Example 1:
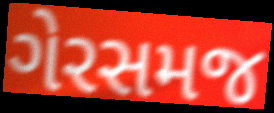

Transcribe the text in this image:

ગેરસમજ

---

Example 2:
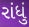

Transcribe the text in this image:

રાંધું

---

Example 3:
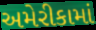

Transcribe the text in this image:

અમેરીકામાં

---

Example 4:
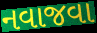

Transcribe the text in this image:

નવાજવા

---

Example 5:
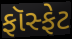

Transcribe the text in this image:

ફૉસ્ફેટ